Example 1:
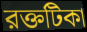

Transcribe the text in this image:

রক্তটিকা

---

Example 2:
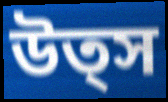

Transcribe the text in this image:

উত্স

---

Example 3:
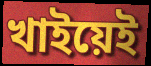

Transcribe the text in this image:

খাইয়েই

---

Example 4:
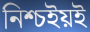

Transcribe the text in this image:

নিশ্চইয়ই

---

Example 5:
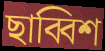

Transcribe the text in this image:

ছাব্বিশ